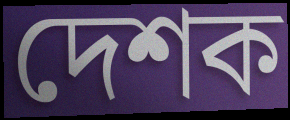
দেশক